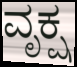
ವೃಕ್ಷ